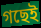
গছেই